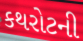
કથરોટની